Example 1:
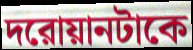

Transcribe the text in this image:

দরোয়ানটাকে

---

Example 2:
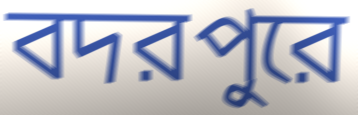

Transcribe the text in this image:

বদরপুরে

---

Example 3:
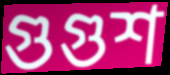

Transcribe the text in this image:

গুগুশ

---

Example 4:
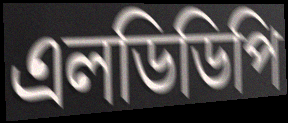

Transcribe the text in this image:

এলডিডিপি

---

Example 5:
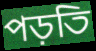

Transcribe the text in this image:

পড়তি